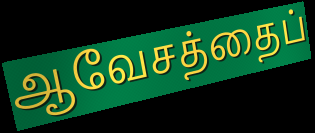
ஆவேசத்தைப்